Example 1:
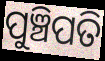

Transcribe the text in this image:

ପୁଞ୍ଚିପତି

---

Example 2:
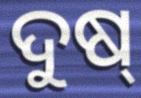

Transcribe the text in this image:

ଦୁଷ୍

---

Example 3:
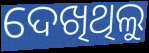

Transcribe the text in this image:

ଦେଖିଥିଲୁ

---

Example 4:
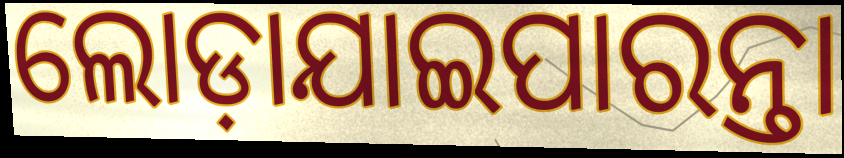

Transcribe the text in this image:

ଲୋଡ଼ାଯାଇପାରନ୍ତା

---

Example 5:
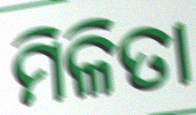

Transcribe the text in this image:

ମିଳିତା